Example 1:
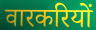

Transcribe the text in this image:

वारकरियों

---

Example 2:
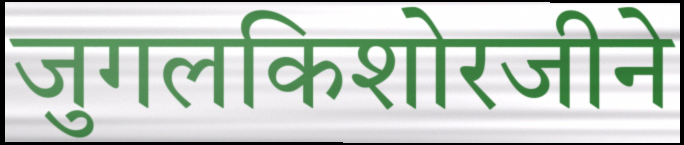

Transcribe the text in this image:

जुगलकिशोरजीने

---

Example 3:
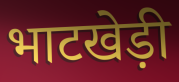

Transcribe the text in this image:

भाटखेड़ी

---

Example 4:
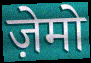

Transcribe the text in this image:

ज़ेमो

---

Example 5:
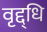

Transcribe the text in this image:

वृद्द्धि